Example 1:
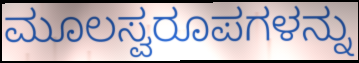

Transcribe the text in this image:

ಮೂಲಸ್ವರೂಪಗಳನ್ನು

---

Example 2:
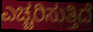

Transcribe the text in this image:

ಎಚ್ಚರಿಸುತ್ತಿದೆ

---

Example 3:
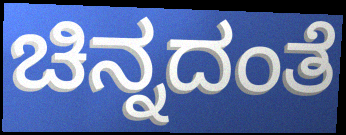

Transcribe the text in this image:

ಚಿನ್ನದಂತೆ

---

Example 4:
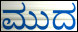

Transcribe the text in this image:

ಮುದ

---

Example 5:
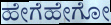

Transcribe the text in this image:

ಹೇಗೆಹೇಗೋ